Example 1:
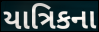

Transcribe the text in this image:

યાત્રિકના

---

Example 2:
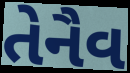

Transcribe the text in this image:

તેનૈવ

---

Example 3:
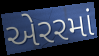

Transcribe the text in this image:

એરરમાં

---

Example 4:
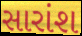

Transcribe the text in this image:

સારાંશ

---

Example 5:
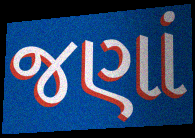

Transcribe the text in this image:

જણાં